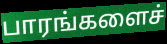
பாரங்களைச்